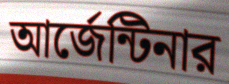
আর্জেন্টিনার